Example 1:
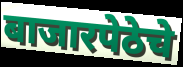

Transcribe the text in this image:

बाजारपेठेचे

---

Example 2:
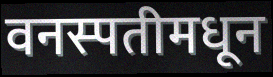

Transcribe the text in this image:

वनस्पतीमधून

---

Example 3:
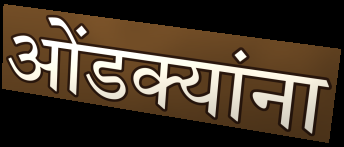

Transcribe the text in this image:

ओंडक्यांना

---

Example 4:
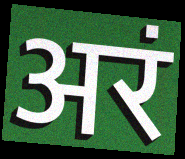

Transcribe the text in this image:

अरं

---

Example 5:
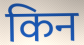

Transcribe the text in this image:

किन